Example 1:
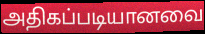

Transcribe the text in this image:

அதிகப்படியானவை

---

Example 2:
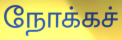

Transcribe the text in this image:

நோக்கச்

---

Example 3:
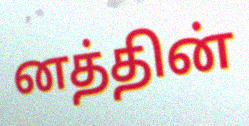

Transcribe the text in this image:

னத்தின்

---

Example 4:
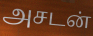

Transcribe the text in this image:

அசடன்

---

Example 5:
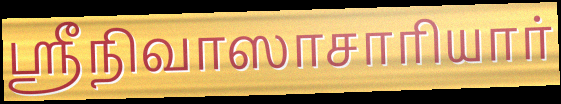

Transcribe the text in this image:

ஸ்ரீநிவாஸாசாரியார்